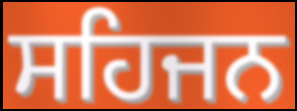
ਸਹਿਜਨ